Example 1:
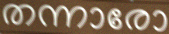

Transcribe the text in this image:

തന്നാരോ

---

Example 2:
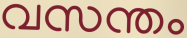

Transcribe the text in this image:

വസന്തം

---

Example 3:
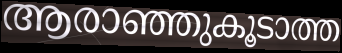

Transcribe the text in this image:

ആരാഞ്ഞുകൂടാത്ത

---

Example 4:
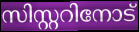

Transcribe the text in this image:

സിസ്റ്ററിനോട്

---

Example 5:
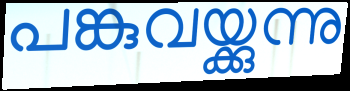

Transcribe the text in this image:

പങ്കുവയ്ക്കുന്നു